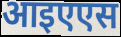
आइएएस